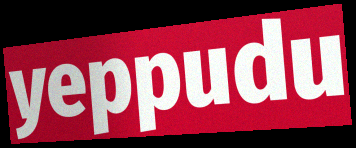
yeppudu